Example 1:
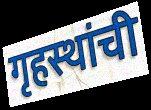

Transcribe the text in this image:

गृहस्थांची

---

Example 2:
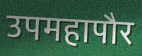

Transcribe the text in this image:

उपमहापौर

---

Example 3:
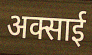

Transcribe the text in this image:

अक्साई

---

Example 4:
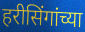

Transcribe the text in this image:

हरीसिंगांच्या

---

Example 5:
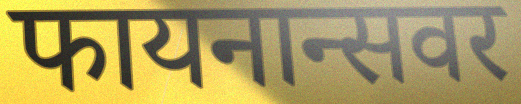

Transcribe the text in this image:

फायनान्सवर